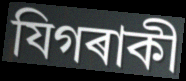
যিগৰাকী